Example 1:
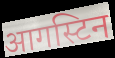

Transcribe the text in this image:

आगस्टिन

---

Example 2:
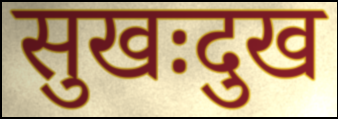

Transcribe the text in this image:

सुखःदुख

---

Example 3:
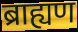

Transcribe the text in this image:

ब्राह्यण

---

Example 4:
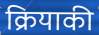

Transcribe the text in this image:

क्रियाकी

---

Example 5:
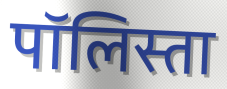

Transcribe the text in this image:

पॉलिस्ता